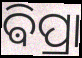
ଵିପ୍ରା